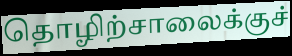
தொழிற்சாலைக்குச்